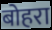
बोहरा